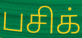
பசிக்